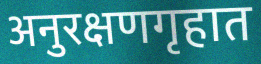
अनुरक्षणगृहात